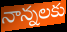
నాన్నలకు